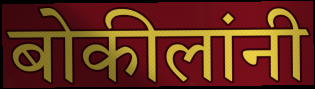
बोकीलांनी